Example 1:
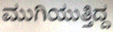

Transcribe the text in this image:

ಮುಗಿಯುತ್ತಿದ್ದ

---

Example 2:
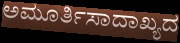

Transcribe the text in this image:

ಅಮೂರ್ತಿಸಾದಾಖ್ಯದ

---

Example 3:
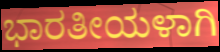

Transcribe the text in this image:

ಭಾರತೀಯಳಾಗಿ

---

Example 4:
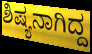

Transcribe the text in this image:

ಶಿಷ್ಯನಾಗಿದ್ದ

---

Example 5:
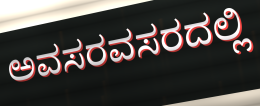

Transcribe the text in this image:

ಅವಸರವಸರದಲ್ಲಿ